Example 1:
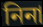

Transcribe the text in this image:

নিনা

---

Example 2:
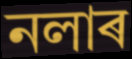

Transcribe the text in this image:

নলাৰ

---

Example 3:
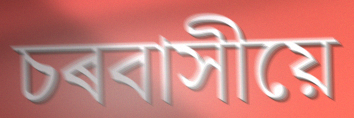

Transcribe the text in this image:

চৰবাসীয়ে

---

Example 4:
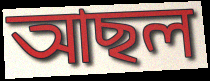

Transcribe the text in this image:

আছল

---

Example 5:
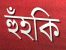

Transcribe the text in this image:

হুঁহকি